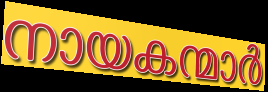
നായകന്മാർ